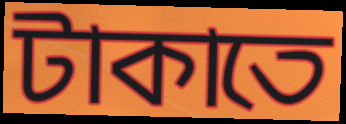
টাকাতে